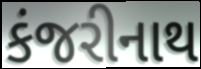
કંજરીનાથ